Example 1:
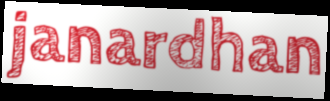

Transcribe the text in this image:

janardhan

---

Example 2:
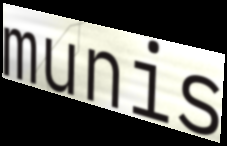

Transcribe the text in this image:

munis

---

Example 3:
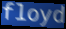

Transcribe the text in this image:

floyd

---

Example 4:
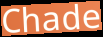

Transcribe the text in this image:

Chade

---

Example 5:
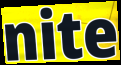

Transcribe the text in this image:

nite